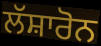
ਲੱਸ਼ਾਰੋਨ